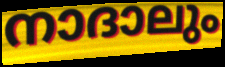
നാദാലും